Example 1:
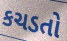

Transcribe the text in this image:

કચડતો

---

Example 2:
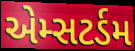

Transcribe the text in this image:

એમ્સટર્ડમ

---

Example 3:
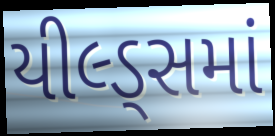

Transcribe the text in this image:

યીલ્ડ્સમાં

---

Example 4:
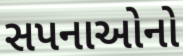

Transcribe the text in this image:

સપનાઓનો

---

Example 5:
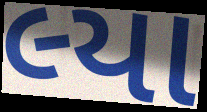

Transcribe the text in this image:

લ્યા